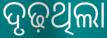
ଦୃଢ଼ଥିଲା